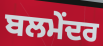
ਬਲਮੇਂਦਰ